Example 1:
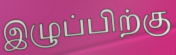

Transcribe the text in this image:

இழுப்பிற்கு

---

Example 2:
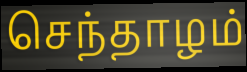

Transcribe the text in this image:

செந்தாழம்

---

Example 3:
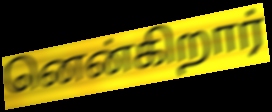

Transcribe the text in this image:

னென்கிறார்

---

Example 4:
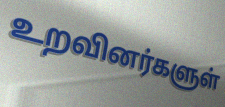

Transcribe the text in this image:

உறவினர்களுள்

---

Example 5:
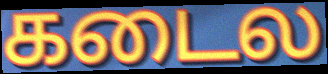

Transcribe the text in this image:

கடைல